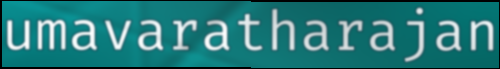
umavaratharajan